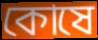
কোষে